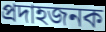
প্রদাহজনক